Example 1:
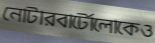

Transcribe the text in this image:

নোটারবার্টোলোকেও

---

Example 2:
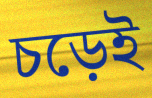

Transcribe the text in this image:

চড়েই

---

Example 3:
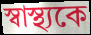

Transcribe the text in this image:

স্বাস্থ্যকে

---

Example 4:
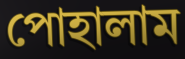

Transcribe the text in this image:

পোহালাম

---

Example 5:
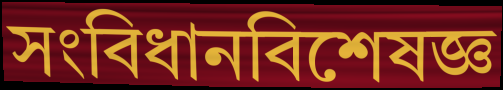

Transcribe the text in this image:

সংবিধানবিশেষজ্ঞ